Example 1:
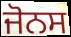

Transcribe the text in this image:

ਜੋਨਸ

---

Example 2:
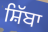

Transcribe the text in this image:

ਸ਼ਿੱਬਾ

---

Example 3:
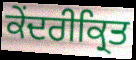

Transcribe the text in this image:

ਕੇਂਦਰੀਕ੍ਰਿਤ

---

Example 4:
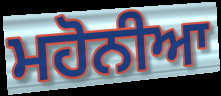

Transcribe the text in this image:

ਮਹੋਨੀਆ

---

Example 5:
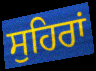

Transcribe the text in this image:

ਸੁਹਿਰਾਂ